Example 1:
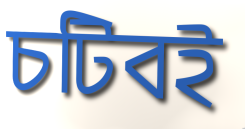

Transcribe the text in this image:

চটিবই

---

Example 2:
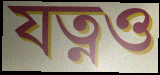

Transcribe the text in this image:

যত্নও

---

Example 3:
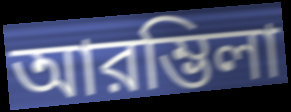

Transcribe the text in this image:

আরম্ভিলা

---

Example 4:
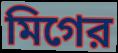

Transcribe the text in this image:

মিগের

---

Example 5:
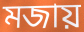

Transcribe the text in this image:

মজায়